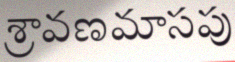
శ్రావణమాసపు